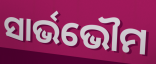
ସାର୍ଭଭୌମ